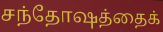
சந்தோஷத்தைக்